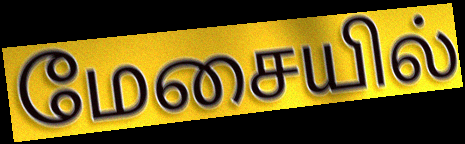
மேசையில்